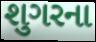
શુગરના